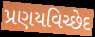
પ્રણયવિચ્છેદ